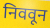
निववून